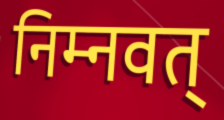
निम्नवत्